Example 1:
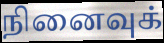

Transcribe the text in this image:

நினைவுக்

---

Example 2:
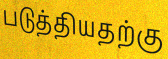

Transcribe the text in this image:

படுத்தியதற்கு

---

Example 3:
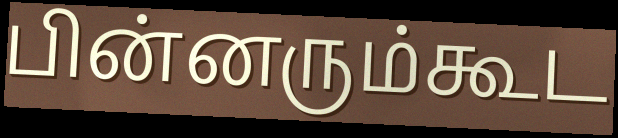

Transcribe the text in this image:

பின்னரும்கூட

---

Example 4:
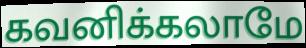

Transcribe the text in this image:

கவனிக்கலாமே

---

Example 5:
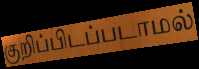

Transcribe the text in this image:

குறிப்பிடப்படாமல்